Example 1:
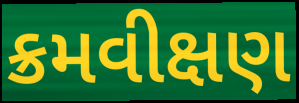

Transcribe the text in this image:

ક્રમવીક્ષણ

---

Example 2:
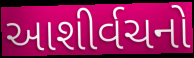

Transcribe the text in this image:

આશીર્વચનો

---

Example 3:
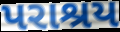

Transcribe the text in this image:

પરાશ્રય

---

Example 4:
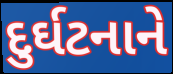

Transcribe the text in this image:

દુર્ઘટનાને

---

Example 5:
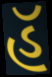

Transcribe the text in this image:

હૅ